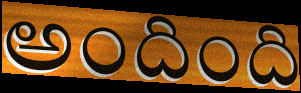
అందింది